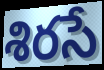
శిరసే